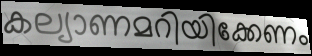
കല്യാണമറിയിക്കേണം